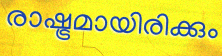
രാഷ്ട്രമായിരിക്കും